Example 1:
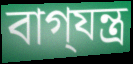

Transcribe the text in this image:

বাগ্‌যন্ত্র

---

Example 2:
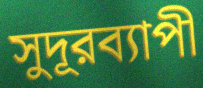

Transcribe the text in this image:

সুদূরব্যাপী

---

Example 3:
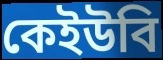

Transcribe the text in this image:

কেইউবি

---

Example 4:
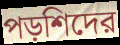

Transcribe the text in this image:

পড়শিদের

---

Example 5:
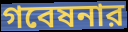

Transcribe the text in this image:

গবেষনার